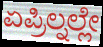
ಏಪ್ರಿಲ್ನಲ್ಲೇ